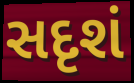
સદૃશં